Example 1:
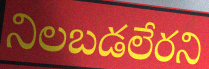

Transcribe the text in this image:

నిలబడలేరని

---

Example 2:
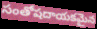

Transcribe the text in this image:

సంతోషదాయకమైన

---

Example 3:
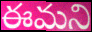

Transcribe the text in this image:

ఈమని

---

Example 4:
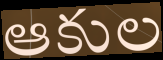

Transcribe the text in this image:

ఆకుల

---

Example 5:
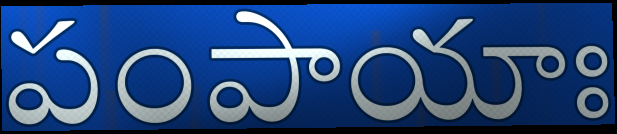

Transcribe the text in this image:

పంపాయాః